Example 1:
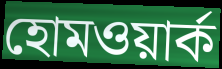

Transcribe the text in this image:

হোমওয়ার্ক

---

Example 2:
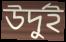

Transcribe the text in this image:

উর্দুই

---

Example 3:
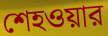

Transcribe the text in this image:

শেহওয়ার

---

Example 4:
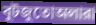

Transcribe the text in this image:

বুটজুতোঅলারা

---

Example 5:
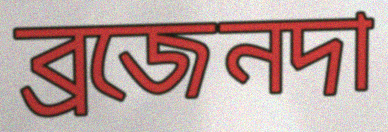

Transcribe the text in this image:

ব্রজেনদা